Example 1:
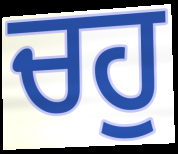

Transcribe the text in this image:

ਚਹੁ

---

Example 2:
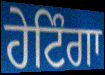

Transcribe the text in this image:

ਹੇਟਿੰਗਾ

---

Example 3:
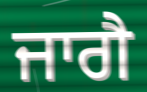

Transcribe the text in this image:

ਜਾਗੈ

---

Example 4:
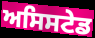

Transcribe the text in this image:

ਅਸਿਸਟੇਡ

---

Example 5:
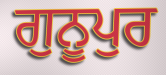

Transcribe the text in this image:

ਗੁਨੂਪੁਰ